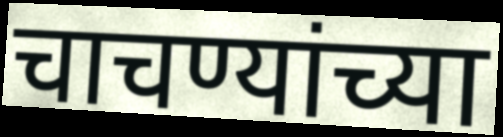
चाचण्यांच्या